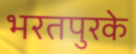
भरतपुरके